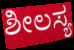
ಶೀಲಸ್ಯ